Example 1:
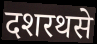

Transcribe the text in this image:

दशरथसे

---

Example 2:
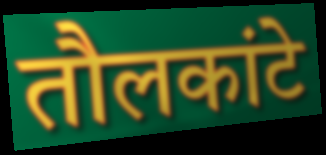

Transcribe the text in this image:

तौलकांटे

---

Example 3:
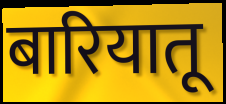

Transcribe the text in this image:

बारियातू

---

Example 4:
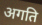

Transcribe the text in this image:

अगति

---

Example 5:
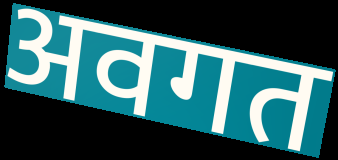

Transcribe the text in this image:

अवगत